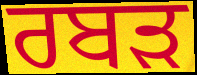
ਰਬੜ